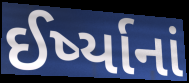
ઈર્ષ્યાનાં